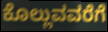
ಕೊಲ್ಲುವವರೆಗೆ